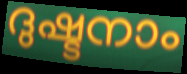
ദുഷ്ടനാം